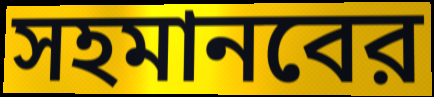
সহমানবের